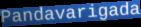
Pandavarigada